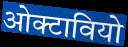
ओक्टावियो